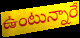
ఉంటున్నారే